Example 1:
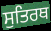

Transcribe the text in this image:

ਸੁਤਿਰਥ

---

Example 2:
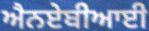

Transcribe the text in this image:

ਐਨਏਬੀਆਈ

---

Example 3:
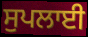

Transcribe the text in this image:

ਸੁਪਲਾਈ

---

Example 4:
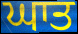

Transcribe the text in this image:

ਘਾਤ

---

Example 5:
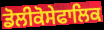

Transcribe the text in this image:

ਡੋਲੀਕੋਸੇਫਾਲਿਕ